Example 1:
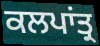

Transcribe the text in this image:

ਕਲਪਾਂਤ੍ਰ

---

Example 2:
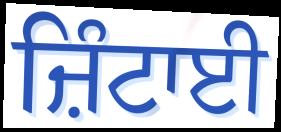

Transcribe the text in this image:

ਜ਼ਿੰਟਾਈ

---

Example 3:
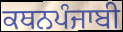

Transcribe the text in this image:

ਕਥਨਪੰਜਾਬੀ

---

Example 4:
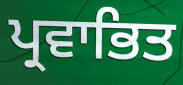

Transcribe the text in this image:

ਪ੍ਰਵਾਭਿਤ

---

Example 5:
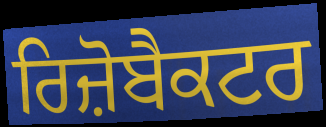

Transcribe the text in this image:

ਰਿਜ਼ੋਬੈਕਟਰ